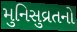
મુનિસુવ્રતનો